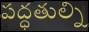
పద్ధతుల్ని